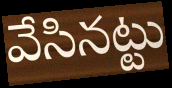
వేసినట్టు